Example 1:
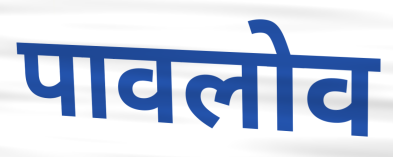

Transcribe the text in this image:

पावलोव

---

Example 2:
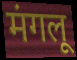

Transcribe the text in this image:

मंगलू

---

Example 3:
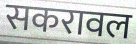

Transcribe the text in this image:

सकरावल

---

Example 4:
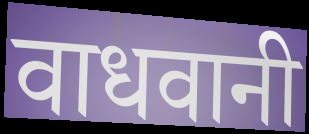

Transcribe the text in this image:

वाधवानी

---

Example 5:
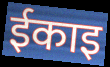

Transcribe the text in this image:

ईकाइ